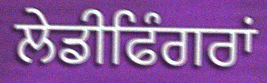
ਲੇਡੀਫਿੰਗਰਾਂ